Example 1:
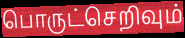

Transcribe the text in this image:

பொருட்செறிவும்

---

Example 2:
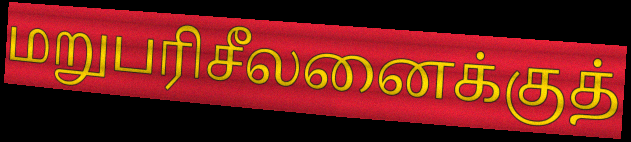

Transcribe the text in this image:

மறுபரிசீலனைக்குத்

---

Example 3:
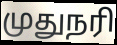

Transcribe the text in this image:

முதுநரி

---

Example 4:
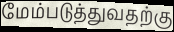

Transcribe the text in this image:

மேம்படுத்துவதற்கு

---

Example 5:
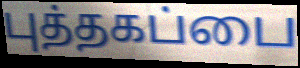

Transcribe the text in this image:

புத்தகப்பை